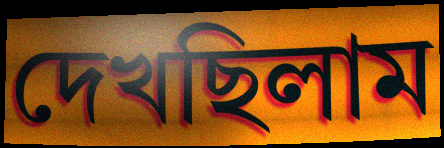
দেখছিলাম